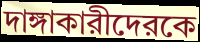
দাঙ্গাকারীদেরকে